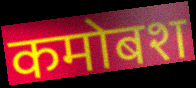
कमोबश